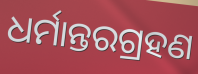
ଧର୍ମାନ୍ତରଗ୍ରହଣ